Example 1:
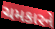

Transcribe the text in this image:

ચમકારને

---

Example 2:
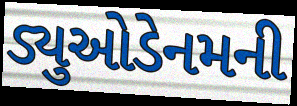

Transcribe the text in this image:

ડ્યુઓડેનમની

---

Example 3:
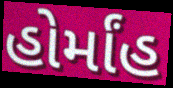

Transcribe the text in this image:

હોર્માંહ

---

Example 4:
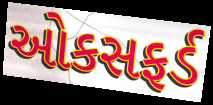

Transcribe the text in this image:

ઓકસફર્ડ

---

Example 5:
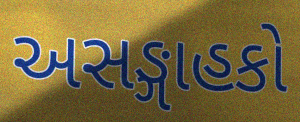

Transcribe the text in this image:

અસઙ્ગાહકો